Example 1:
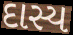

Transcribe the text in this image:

દાસ્ય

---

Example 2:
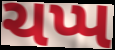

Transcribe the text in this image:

ચપ્પ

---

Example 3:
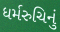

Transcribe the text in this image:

ધર્મરુચિનું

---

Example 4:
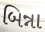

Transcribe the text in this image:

બિન્ના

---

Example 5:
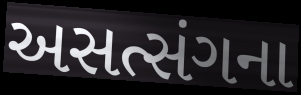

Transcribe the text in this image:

અસત્સંગના